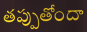
తప్పుతోందా